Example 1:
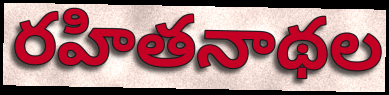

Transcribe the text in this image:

రహితనాథల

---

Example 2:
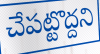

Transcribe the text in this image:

చేపట్టొద్దని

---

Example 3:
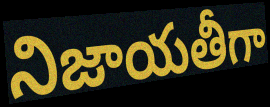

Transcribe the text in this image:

నిజాయతీగా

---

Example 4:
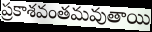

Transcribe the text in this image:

ప్రకాశవంతమవుతాయి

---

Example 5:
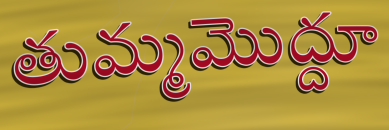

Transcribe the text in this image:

తుమ్మమొద్దూ